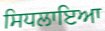
ਸਿਧਲਾਇਆ